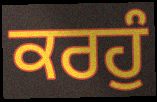
ਕਰਹੁੰ